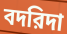
বদরিদা